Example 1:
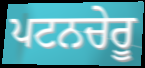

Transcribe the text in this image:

ਪਟਨਚੇਰੂ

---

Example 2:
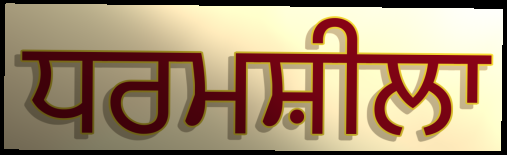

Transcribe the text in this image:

ਧਰਮਸ਼ੀਲਾ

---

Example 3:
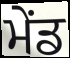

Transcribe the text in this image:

ਮੇਂਡ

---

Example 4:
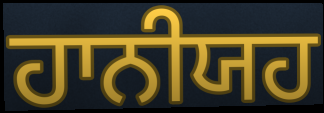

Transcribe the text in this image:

ਹਾਨੀਯਹ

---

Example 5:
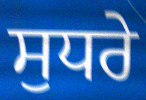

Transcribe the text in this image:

ਸੁਧਰੇ